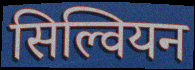
सिल्वियन